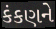
કંકણને